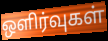
ஒளிர்வுகள்